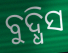
ବୁଦ୍ଧିସ